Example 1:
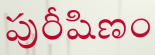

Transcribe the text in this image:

పురీషిణం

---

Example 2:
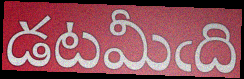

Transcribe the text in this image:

డటమీఁది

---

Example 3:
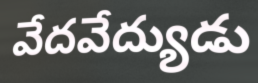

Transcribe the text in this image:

వేదవేద్యుడు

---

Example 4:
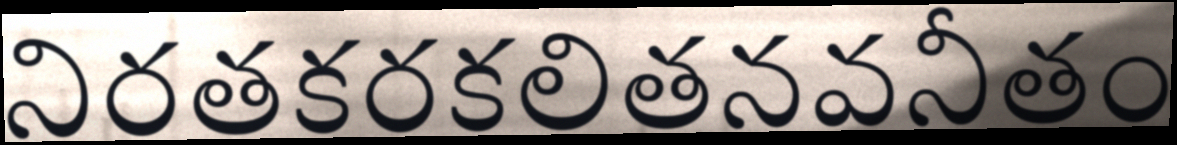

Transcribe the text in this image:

నిరతకరకలితనవనీతం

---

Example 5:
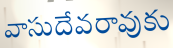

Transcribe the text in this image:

వాసుదేవరావుకు